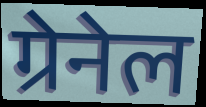
ग्रेनेल